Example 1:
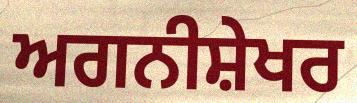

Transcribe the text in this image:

ਅਗਨੀਸ਼ੇਖਰ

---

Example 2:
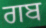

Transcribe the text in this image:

ਗਬ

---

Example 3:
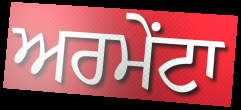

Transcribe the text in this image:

ਅਰਮੇਂਟਾ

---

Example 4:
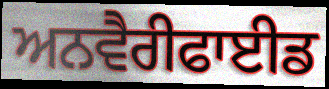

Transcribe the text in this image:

ਅਨਵੈਰੀਫਾਈਡ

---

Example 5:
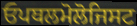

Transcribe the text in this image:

ਓਪਥਲਮੋਲੋਜਿਸਟ